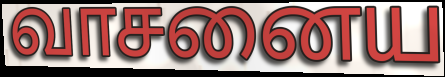
வாசனைய